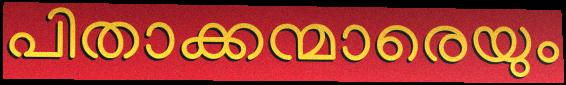
പിതാക്കന്മാരെയും